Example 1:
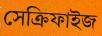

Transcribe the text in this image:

সেক্রিফাইজ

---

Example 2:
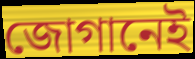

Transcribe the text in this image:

জোগানেই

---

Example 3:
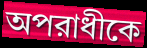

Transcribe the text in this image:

অপরাধীকে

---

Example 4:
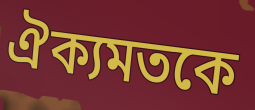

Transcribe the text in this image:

ঐক্যমতকে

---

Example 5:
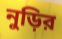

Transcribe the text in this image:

নুড়ির